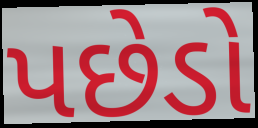
પછેડો